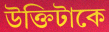
উক্তিটাকে